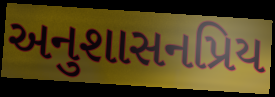
અનુશાસનપ્રિય